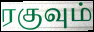
ரகுவும்